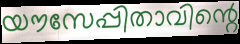
യൗസേപ്പിതാവിന്റെ